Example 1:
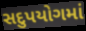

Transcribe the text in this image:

સદુપયોગમાં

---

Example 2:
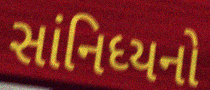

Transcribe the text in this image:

સાંનિધ્યનો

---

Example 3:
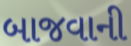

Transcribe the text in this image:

બાજવાની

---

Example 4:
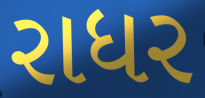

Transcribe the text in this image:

રાધર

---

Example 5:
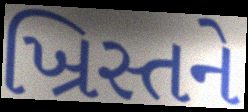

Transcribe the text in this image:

ખ્રિસ્તને